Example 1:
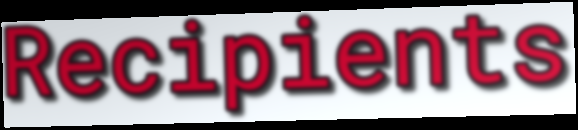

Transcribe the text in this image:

Recipients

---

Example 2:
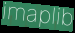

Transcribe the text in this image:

imaplib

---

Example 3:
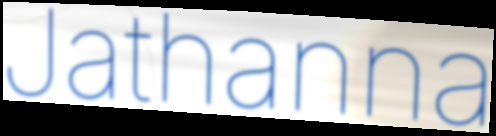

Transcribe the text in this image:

Jathanna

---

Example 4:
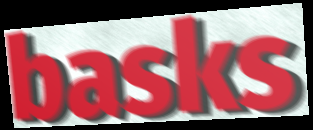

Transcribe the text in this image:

basks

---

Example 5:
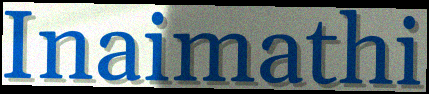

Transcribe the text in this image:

Inaimathi